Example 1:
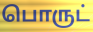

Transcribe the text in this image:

பொருட்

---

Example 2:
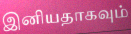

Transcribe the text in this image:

இனியதாகவும்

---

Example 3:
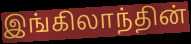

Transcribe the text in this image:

இங்கிலாந்தின்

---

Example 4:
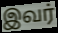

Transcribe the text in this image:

இவர்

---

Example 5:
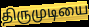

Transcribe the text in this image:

திருமுடியை